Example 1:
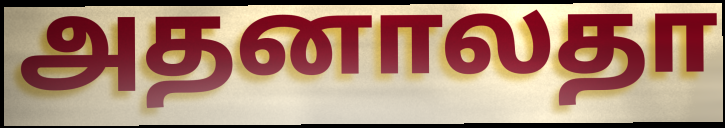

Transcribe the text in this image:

அதனாலதா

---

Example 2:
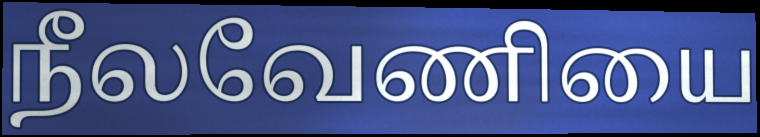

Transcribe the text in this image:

நீலவேணியை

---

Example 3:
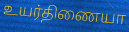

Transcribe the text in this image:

உயர்திணையா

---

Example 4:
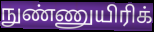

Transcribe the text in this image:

நுண்ணுயிரிக்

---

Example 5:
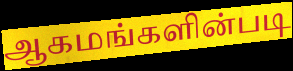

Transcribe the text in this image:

ஆகமங்களின்படி